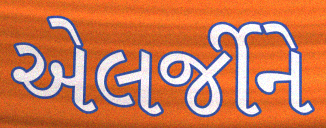
એલર્જીને